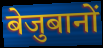
बेजुबानों